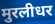
मुरलीधर